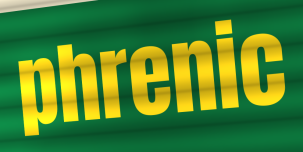
phrenic